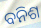
ବନିଶ